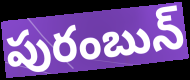
పురంబున్